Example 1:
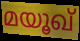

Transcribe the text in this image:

മയൂഖ്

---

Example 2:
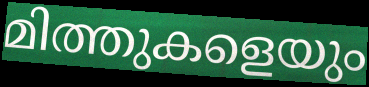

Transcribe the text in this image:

മിത്തുകളെയും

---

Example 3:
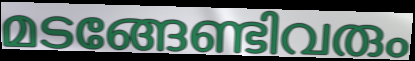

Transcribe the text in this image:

മടങ്ങേണ്ടിവരും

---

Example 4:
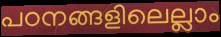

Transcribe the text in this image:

പഠനങ്ങളിലെല്ലാം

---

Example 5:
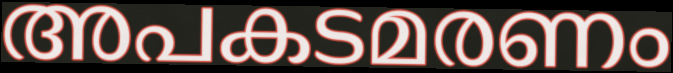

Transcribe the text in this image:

അപകടമരണം